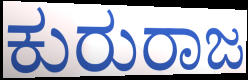
ಕುರುರಾಜ